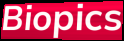
Biopics